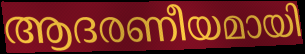
ആദരണീയമായി